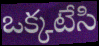
ఒక్కటేసి